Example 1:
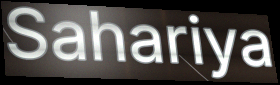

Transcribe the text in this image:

Sahariya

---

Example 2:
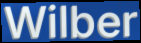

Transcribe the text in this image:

Wilber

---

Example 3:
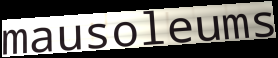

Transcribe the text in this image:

mausoleums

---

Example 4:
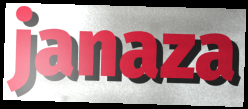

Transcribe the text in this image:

janaza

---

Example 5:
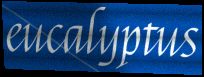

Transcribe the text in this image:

eucalyptus